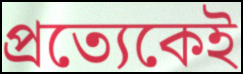
প্ৰত্যেকেই